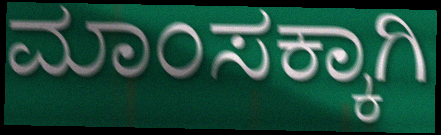
ಮಾಂಸಕ್ಕಾಗಿ